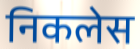
निकलेस